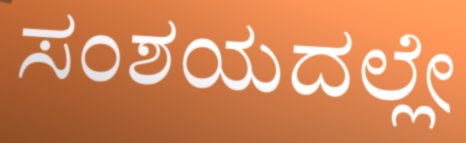
ಸಂಶಯದಲ್ಲೇ